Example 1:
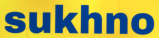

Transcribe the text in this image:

sukhno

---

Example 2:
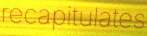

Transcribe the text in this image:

recapitulates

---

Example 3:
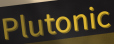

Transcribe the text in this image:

Plutonic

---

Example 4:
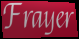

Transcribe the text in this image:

Frayer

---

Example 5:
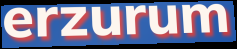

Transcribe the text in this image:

erzurum